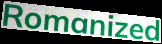
Romanized